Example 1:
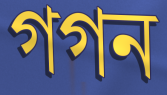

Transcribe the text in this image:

গগন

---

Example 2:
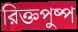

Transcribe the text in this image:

রিক্তপুষ্প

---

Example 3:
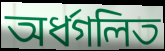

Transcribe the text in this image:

অর্ধগলিত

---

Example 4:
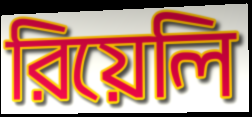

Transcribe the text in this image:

রিয়েলি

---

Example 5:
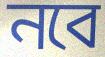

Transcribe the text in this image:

নবে